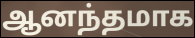
ஆனந்தமாக